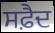
ਸਫ਼ੈਦ